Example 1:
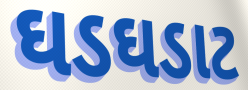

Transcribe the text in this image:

ઘડઘડાટ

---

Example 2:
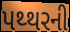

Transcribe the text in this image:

પથ્થરની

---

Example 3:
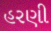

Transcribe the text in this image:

હરણી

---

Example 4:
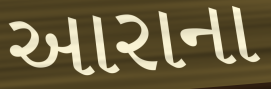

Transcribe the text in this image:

આરાના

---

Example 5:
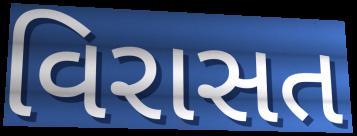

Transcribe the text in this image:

વિરાસત